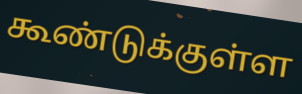
கூண்டுக்குள்ள